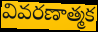
వివరణాత్మక